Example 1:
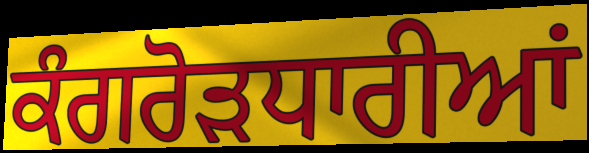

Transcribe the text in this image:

ਕੰਗਰੋੜਧਾਰੀਆਂ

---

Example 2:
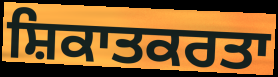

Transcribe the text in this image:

ਸ਼ਿਕਾਤਕਰਤਾ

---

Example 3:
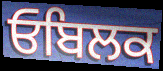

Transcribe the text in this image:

ਓਬਿਲਕ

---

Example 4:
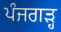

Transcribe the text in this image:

ਪੰਜਗੜ੍ਹ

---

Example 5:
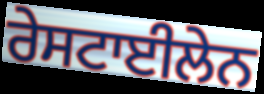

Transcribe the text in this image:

ਰੇਸਟਾਈਲੇਨ